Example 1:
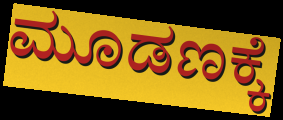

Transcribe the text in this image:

ಮೂಡಣಕ್ಕೆ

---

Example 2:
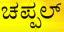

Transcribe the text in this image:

ಚಪ್ಪಲ್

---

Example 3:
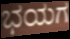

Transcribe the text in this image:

ಭಯಗ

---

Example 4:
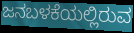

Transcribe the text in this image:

ಜನಬಳಕೆಯಲ್ಲಿರುವ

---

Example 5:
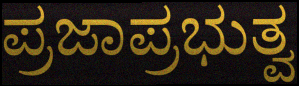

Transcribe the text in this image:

ಪ್ರಜಾಪ್ರಭುತ್ವ